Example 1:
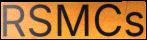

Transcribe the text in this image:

RSMCs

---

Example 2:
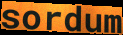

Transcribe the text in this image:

sordum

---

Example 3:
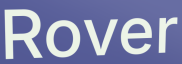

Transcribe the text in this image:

Rover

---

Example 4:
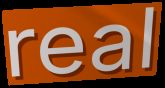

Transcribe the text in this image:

real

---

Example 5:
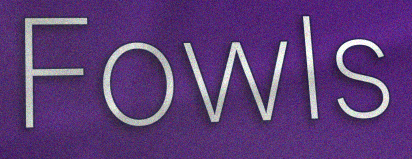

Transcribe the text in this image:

Fowls